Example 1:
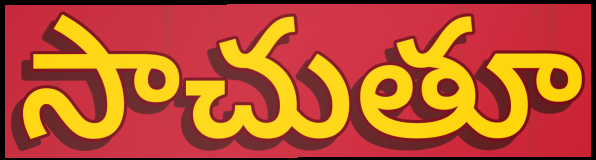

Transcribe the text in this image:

సాచుతూ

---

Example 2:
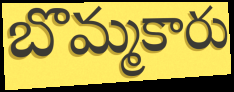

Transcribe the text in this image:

బొమ్మకారు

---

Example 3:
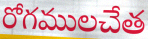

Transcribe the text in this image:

రోగములచేత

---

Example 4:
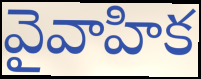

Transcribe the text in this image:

వైవాహిక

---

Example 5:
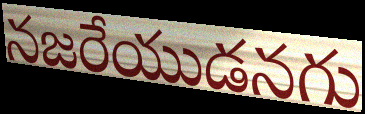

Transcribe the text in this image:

నజరేయుడనగు